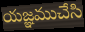
యజ్ఞముచేసి